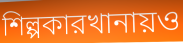
শিল্পকারখানায়ও